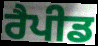
ਰੈਪੀਡ